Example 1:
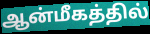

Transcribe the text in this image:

ஆன்மீகத்தில்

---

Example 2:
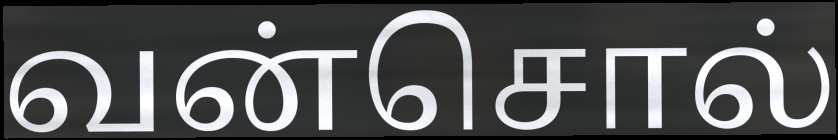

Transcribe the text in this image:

வன்சொல்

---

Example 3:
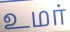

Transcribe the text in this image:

உமர்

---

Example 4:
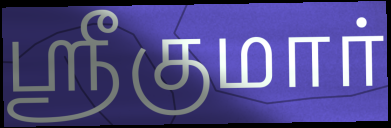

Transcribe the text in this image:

ஸ்ரீகுமார்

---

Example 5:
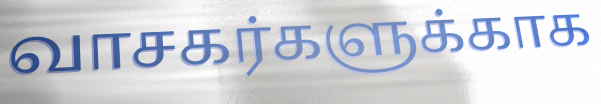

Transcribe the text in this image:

வாசகர்களுக்காக